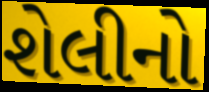
શેલીનો